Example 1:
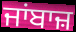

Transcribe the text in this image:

ਜਾਂਬਾਜ਼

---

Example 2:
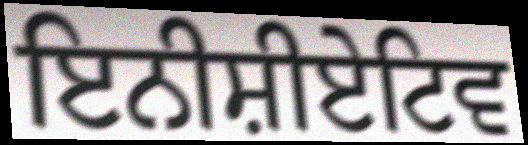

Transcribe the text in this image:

ਇਨੀਸ਼ੀਏਟਿਵ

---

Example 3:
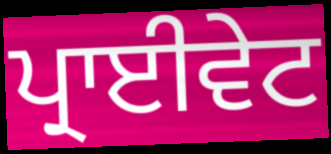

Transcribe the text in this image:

ਪ੍ਰਾਈਵੇਟ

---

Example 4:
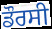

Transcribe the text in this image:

ਡੌਰਸੀ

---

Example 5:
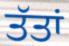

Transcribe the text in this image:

ਤੱਤਾਂ